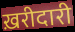
ख़रीदारी